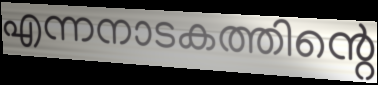
എന്നനാടകത്തിന്റെ